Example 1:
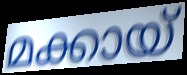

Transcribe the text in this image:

മക്കായ്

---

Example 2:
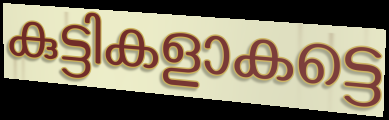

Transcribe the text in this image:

കുട്ടികളാകട്ടെ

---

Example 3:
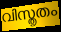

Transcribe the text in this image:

വിസ്തൃതം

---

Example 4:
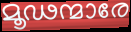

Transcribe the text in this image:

മൂഢന്മാരേ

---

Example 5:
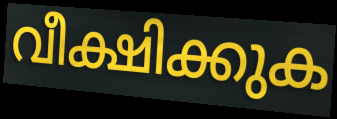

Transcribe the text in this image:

വീക്ഷിക്കുക